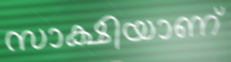
സാക്ഷിയാണ്